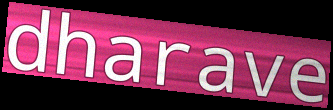
dharave